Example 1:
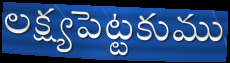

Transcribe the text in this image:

లక్ష్యపెట్టకుము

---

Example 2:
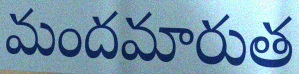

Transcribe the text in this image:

మందమారుత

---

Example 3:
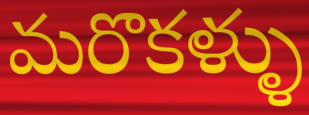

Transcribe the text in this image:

మరొకళ్ళు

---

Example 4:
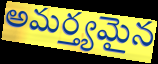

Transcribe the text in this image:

అమర్త్యమైన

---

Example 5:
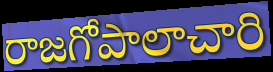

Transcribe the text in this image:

రాజగోపాలాచారి